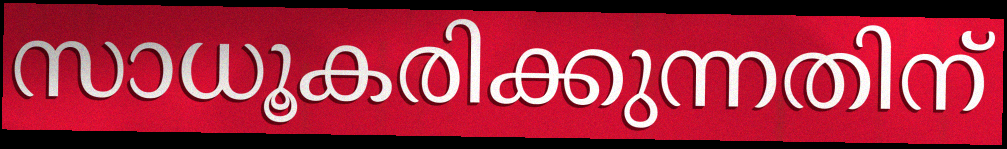
സാധൂകരിക്കുന്നതിന്